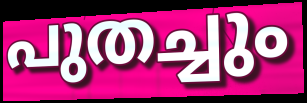
പുതച്ചും